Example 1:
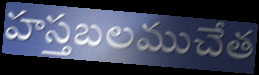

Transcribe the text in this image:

హస్తబలముచేత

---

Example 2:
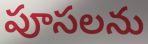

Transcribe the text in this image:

పూసలను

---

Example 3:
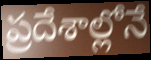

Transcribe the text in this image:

ప్రదేశాల్లోనే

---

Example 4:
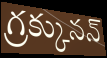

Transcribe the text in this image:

గ్రక్కునన్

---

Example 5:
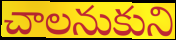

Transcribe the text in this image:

చాలనుకుని